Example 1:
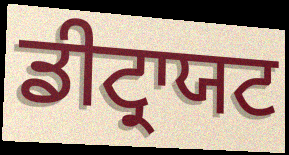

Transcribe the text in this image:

ਡੀਟ੍ਰਾਯਟ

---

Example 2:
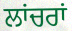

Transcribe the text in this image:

ਲਾਂਚਰਾਂ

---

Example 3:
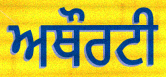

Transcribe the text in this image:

ਅਥੌਰਟੀ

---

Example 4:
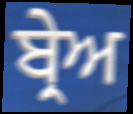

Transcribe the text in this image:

ਬ੍ਰੇਅ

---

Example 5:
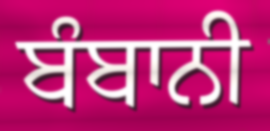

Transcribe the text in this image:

ਬੰਬਾਨੀ